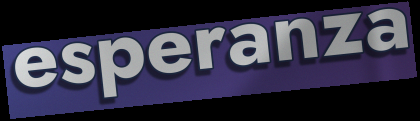
esperanza